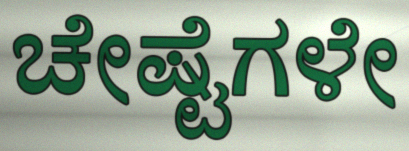
ಚೇಷ್ಟೆಗಳೇ